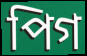
পিগ